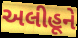
અલીહૂને